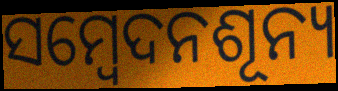
ସମ୍ବେଦନଶୂନ୍ୟ